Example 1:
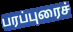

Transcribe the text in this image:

பரப்புரைச்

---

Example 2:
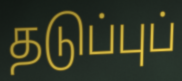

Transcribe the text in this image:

தடுப்புப்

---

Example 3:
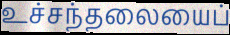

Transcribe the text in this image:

உச்சந்தலையைப்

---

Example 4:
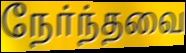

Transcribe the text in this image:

நேர்ந்தவை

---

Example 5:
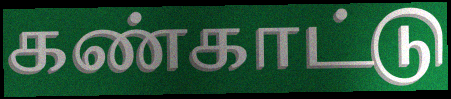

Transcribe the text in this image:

கண்காட்டு